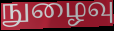
நுழைவு